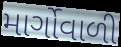
માર્ગોવાળી